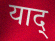
याद्